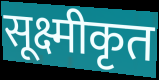
सूक्ष्मीकृत